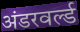
अंडरवर्ल्‍ड